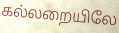
கல்லறையிலே